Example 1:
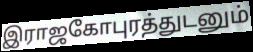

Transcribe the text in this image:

இராஜகோபுரத்துடனும்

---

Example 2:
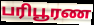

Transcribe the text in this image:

பரிபூரண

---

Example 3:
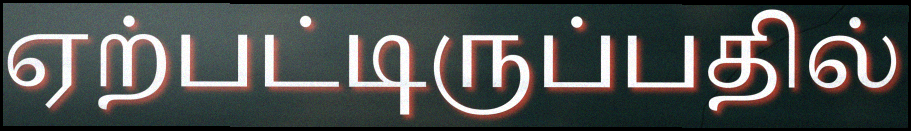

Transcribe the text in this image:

ஏற்பட்டிருப்பதில்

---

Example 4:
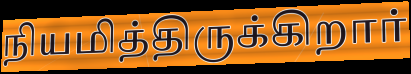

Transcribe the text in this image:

நியமித்திருக்கிறார்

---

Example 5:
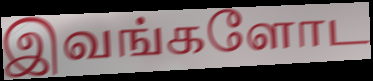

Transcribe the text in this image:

இவங்களோட